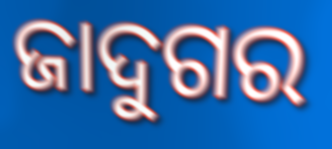
ଜାଦୁଗର